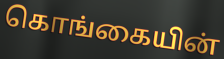
கொங்கையின்